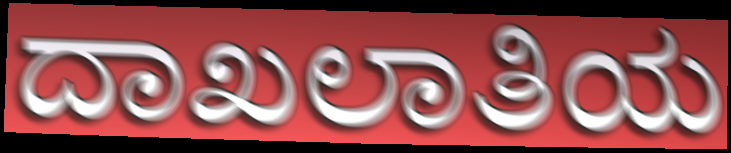
ದಾಖಲಾತಿಯ